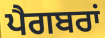
ਪੈਗਬਰਾਂ